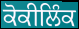
ਕੋਕੀਲਿੰਕ